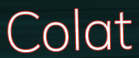
Colat